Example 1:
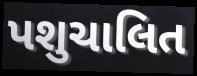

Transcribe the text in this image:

પશુચાલિત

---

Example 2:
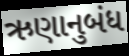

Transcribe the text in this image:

ઋણાનુબંધ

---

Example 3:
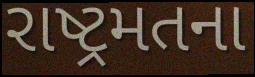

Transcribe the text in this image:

રાષ્ટ્રમતના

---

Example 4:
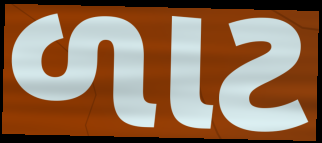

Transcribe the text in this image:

ળાટ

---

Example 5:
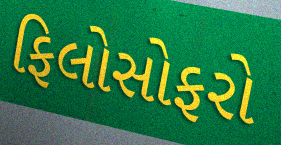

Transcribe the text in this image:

ફિલોસોફરો